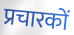
प्रचारकों